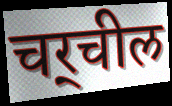
चर्चील